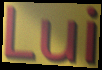
Lui